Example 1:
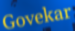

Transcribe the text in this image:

Govekar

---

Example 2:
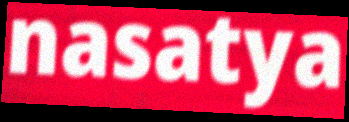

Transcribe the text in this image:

nasatya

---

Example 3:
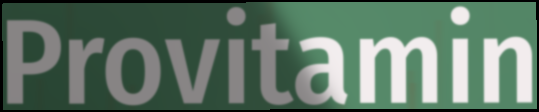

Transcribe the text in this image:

Provitamin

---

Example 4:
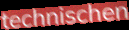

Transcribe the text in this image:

technischen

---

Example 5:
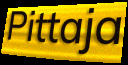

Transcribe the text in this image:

Pittaja